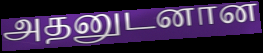
அதனுடனான